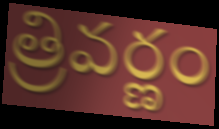
త్రివర్ణం